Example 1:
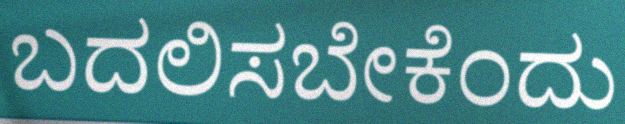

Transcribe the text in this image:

ಬದಲಿಸಬೇಕೆಂದು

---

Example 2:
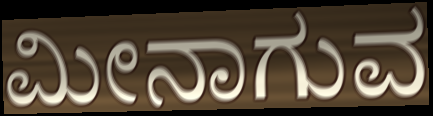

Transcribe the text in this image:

ಮೀನಾಗುವ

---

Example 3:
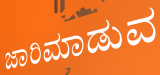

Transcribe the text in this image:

ಜಾರಿಮಾಡುವ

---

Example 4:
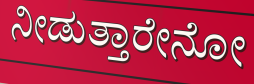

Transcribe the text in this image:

ನೀಡುತ್ತಾರೇನೋ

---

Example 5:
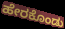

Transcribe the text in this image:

ಹೇರಕೊಂಡು